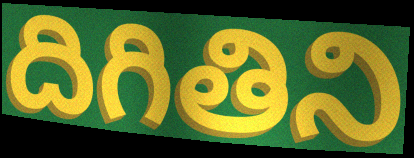
దిగితిని